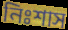
নিঃশাস